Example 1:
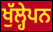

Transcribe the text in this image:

ਖੁੱਲ੍ਹੇਪਨ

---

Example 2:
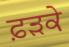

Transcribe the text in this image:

ਫ਼ਡ਼ਕੇ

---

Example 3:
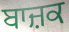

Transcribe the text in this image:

ਬਾਜ਼ਕ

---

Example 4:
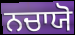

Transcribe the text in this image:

ਨਚਾਯੋ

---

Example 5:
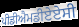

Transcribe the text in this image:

ਪੀਡੀਐਮਡੀਏਏਸੀ